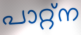
പാറ്റ്ന